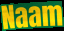
Naam